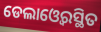
ଡେଲାଓ୍ବେରସ୍ଥିତ